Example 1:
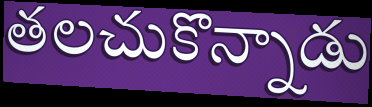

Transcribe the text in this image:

తలచుకొన్నాడు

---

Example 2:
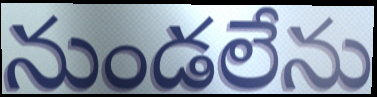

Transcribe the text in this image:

నుండలేను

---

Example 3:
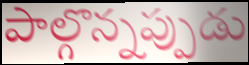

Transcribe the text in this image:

పాల్గొన్నప్పుడు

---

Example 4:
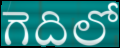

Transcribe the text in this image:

గెదిలో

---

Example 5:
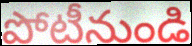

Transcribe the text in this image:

పోటీనుండి